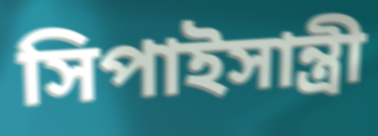
সিপাইসান্ত্রী